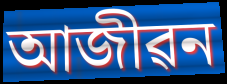
আজীৱন